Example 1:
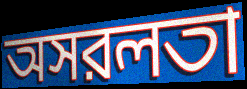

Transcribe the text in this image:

অসরলতা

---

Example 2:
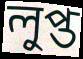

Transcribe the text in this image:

লুপ্ত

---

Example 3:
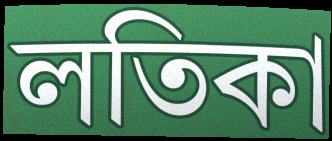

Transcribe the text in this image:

লতিকা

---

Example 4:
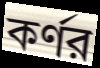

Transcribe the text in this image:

কর্ণর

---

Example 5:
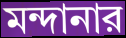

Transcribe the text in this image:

মন্দানার